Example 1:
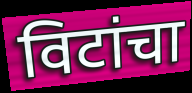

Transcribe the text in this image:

विटांचा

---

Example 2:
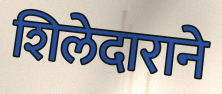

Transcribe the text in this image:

शिलेदाराने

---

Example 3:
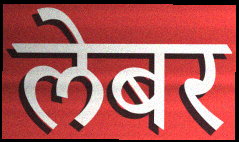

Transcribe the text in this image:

लेबर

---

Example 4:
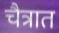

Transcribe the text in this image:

चैत्रात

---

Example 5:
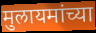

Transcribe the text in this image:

मुलायमांच्या